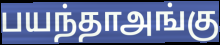
பயந்தாஅங்கு